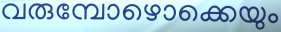
വരുമ്പോഴൊക്കെയും